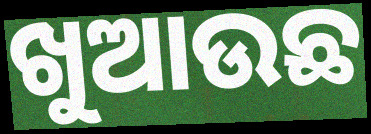
ଖୁଆଉଛ